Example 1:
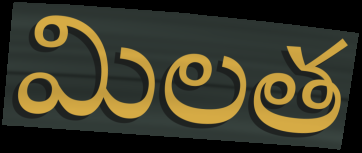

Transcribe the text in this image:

మిలత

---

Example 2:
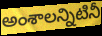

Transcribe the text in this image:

అంశాలన్నిటినీ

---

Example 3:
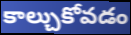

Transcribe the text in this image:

కాల్చుకోవడం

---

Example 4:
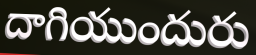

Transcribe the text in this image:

దాగియుందురు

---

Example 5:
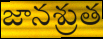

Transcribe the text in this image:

జానశ్రుత